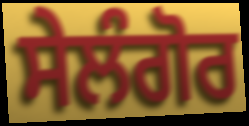
ਸੇਲੰਗੋਰ